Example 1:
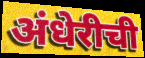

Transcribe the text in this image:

अंधेरीची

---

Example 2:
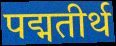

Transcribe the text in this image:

पद्मतीर्थ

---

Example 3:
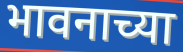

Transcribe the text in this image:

भावनाच्या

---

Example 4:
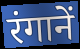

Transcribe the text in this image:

रंगानें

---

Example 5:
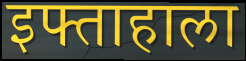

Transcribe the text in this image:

इफ्ताहाला